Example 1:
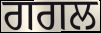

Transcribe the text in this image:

ਗਗਲ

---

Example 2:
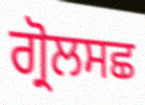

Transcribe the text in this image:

ਗ੍ਰੋਲਸਛ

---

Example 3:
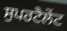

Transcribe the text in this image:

ਸੁਪਰਟੈਲੇਂਟ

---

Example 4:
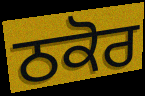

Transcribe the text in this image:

ਠਕੋਰ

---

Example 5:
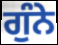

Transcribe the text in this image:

ਗੁੰਨੇ